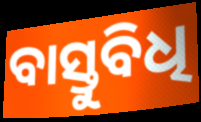
ବାସ୍ତୁବିଧି